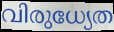
വിരുധ്യേത